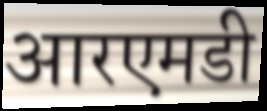
आरएमडी